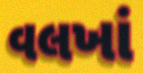
વલખાં